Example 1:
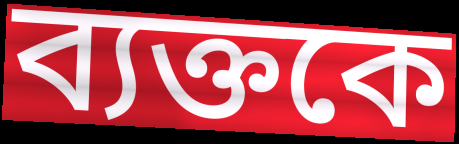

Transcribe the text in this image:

ব্যক্তকে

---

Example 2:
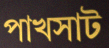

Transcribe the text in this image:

পাখসাট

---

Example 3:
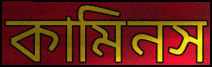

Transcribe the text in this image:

কামিনস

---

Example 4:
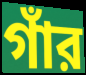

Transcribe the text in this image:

গাঁর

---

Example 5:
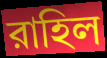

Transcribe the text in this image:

রাহিল